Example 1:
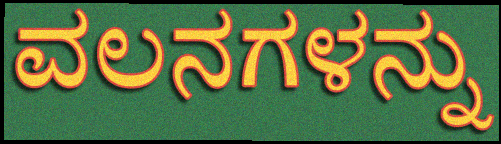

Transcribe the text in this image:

ವಲನಗಳನ್ನು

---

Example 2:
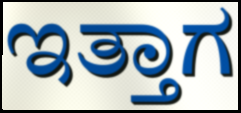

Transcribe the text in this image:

ಇತ್ತಾಗ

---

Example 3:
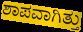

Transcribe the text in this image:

ಶಾಪವಾಗಿತ್ತು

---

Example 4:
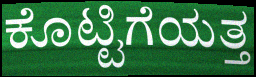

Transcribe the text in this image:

ಕೊಟ್ಟಿಗೆಯತ್ತ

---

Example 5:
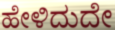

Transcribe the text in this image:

ಹೇಳಿದುದೇ